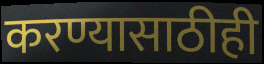
करण्यासाठीही